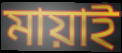
মায়াই